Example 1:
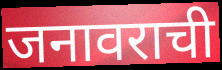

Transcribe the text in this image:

जनावराची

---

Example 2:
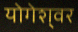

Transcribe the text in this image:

योगेश्वर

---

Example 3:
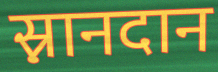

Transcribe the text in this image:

स्नानदान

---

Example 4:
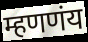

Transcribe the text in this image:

म्हणणंय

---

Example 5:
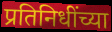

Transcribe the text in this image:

प्रतिनिधींच्या